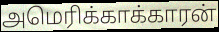
அமெரிக்காக்காரன்